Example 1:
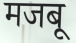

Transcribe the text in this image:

मजबू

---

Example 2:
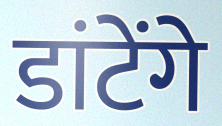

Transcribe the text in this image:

डांटेंगे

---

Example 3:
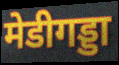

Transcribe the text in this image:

मेडीगड्डा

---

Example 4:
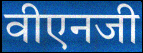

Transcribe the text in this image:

वीएनजी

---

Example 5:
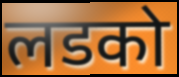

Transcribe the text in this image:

लडको